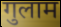
गुलाम